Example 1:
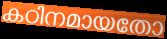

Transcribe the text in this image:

കഠിനമായതോ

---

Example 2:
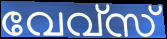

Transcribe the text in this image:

വേവ്സ്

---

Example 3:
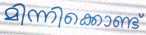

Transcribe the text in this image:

മിന്നിക്കൊണ്ട്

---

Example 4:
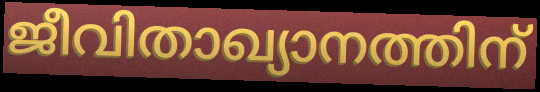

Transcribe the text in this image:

ജീവിതാഖ്യാനത്തിന്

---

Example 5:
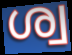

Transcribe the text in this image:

ശ്വ